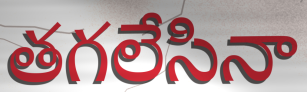
తగలేసినా